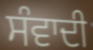
ਸੰਵਾਦੀ